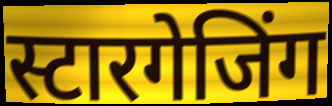
स्टारगेजिंग